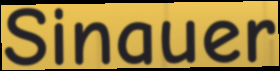
Sinauer